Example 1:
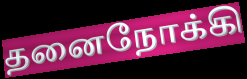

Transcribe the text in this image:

தனைநோக்கி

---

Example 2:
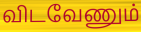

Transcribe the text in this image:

விடவேணும்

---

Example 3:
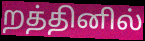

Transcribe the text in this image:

றத்தினில்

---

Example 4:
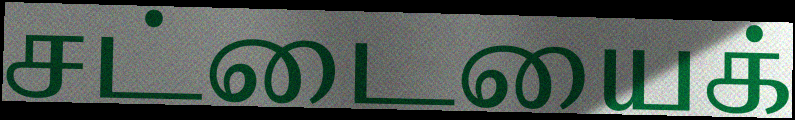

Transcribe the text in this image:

சட்டையைக்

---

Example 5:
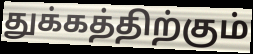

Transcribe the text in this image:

துக்கத்திற்கும்